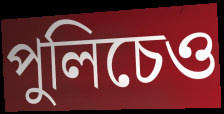
পুলিচেও